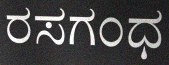
ರಸಗಂಧ